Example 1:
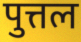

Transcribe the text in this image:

पुत्तल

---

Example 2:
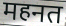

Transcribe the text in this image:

महनत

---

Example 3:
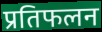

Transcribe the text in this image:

प्रतिफलन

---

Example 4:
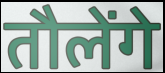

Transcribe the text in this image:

तौलेंगे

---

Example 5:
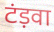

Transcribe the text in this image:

टंड़वा